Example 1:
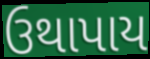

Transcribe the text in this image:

ઉથાપાય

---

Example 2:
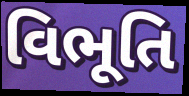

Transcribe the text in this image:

વિભૂતિ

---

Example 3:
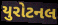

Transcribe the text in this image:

યુરોટનલ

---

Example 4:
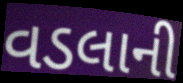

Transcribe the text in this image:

વડલાની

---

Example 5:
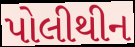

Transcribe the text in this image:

પોલીથીન